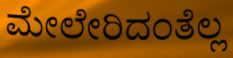
ಮೇಲೇರಿದಂತೆಲ್ಲ